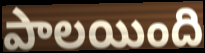
పాలయింది